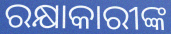
ରକ୍ଷାକାରୀଙ୍କ